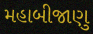
મહાબીજાણુ